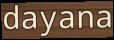
dayana